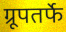
ग्रूपतर्फे